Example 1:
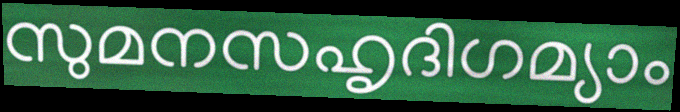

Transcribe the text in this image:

സുമനസഹൃദിഗമ്യാം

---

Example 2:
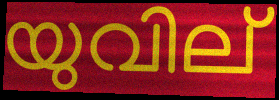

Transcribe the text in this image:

യുവില്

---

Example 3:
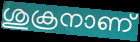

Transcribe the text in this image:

ശുക്രനാണ്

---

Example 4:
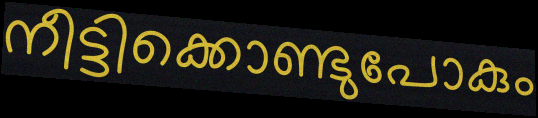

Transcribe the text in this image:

നീട്ടിക്കൊണ്ടുപോകും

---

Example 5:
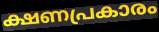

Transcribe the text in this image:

ക്ഷണപ്രകാരം